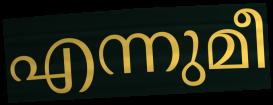
എന്നുമീ